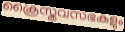
ക്രൈസ്തവസഭകളും